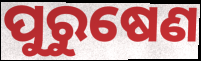
ପୁରୁଷେଣ